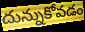
దున్నుకోవడం